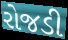
રોજડી